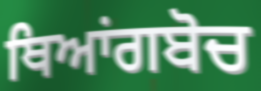
ਥਿਆਂਗਬੋਚ